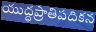
యుద్ధప్రాతిపదికన